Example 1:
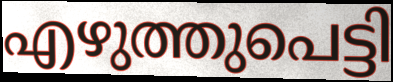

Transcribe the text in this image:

എഴുത്തുപെട്ടി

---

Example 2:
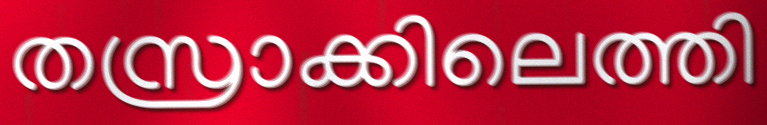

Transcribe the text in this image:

തസ്രാക്കിലെത്തി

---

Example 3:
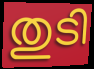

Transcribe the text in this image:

തുടി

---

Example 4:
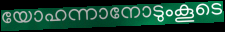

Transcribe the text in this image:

യോഹന്നാനോടുംകൂടെ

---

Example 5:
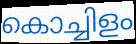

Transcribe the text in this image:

കൊച്ചിളം